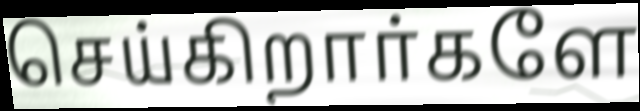
செய்கிறார்களே